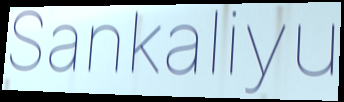
Sankaliyu